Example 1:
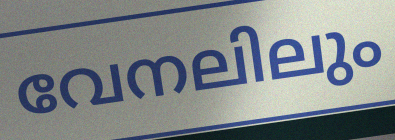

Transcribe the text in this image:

വേനലിലും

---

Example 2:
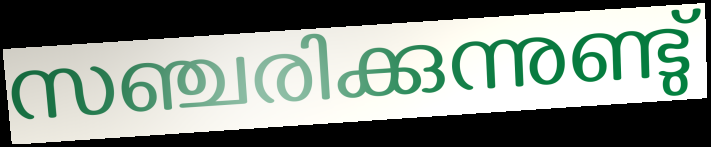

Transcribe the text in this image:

സഞ്ചരിക്കുന്നുണ്ടു്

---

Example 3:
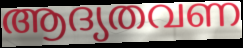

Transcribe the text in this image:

ആദ്യതവണ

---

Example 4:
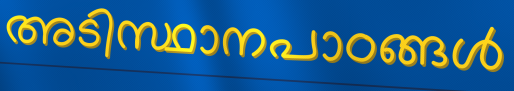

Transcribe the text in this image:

അടിസ്ഥാനപാഠങ്ങൾ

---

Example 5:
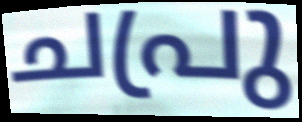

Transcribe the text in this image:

ചപ്രു